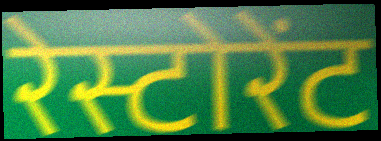
रेस्टोरेंट